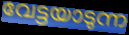
വേട്ടയാടുന്ന